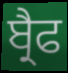
ਬ੍ਰੈਫ